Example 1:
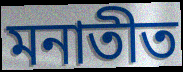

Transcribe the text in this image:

মনাতীত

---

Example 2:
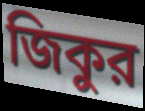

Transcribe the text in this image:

জিকুর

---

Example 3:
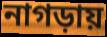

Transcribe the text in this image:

নাগড়ায়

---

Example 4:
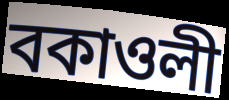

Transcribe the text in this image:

বকাওলী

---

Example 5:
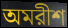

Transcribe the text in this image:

অমরীশ